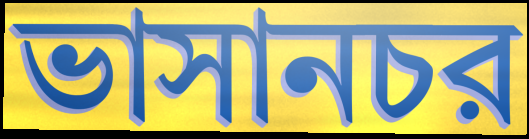
ভাসানচর